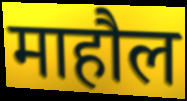
माहौल